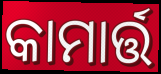
କାମାର୍ତ୍ତ